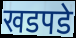
खडपडे